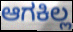
ಆಗಕಿಲ್ಲ